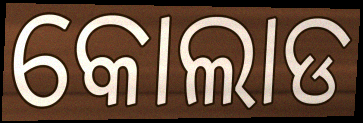
କୋଲାଡ